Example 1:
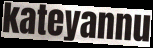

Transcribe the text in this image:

kateyannu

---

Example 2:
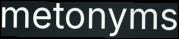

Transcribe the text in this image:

metonyms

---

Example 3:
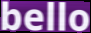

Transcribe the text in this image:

bello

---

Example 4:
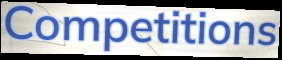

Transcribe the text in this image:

Competitions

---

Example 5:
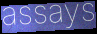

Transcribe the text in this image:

assays